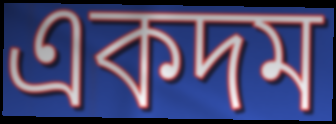
একদম